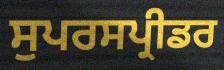
ਸੁਪਰਸਪ੍ਰੀਡਰ